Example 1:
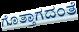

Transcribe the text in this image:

ಗೊತ್ತಾಗದಂತೆ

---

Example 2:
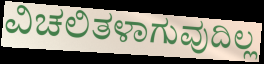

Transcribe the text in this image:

ವಿಚಲಿತಳಾಗುವುದಿಲ್ಲ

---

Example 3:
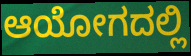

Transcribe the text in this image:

ಆಯೋಗದಲ್ಲಿ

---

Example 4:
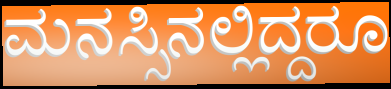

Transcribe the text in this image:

ಮನಸ್ಸಿನಲ್ಲಿದ್ದರೂ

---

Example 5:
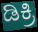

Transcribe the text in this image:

ಡಿಕ್ರಿ